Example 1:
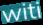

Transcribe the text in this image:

witi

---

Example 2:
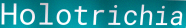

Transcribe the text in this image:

Holotrichia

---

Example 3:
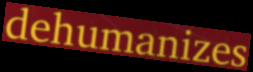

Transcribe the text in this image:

dehumanizes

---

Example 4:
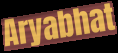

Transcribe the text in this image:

Aryabhat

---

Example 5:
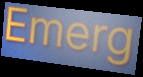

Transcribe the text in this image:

Emerg